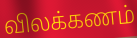
விலக்கணம்